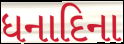
ધનાદિના